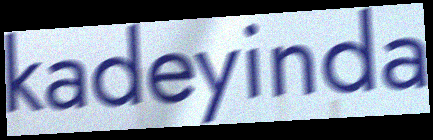
kadeyinda